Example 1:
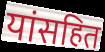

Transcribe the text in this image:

यांसहित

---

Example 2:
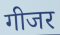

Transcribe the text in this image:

गीजर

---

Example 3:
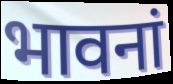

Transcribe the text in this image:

भावनां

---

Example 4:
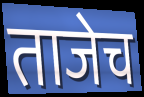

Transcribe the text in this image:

ताजेच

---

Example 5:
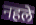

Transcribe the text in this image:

नहले